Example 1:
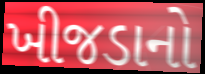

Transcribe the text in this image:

ખીજડાનો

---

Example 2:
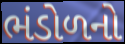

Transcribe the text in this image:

ભંડોળનો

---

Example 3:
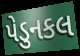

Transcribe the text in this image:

પેડુનકલ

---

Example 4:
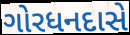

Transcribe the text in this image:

ગોરધનદાસે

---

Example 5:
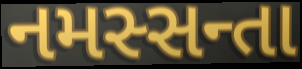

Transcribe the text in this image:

નમસ્સન્તા